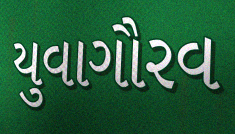
યુવાગૌરવ